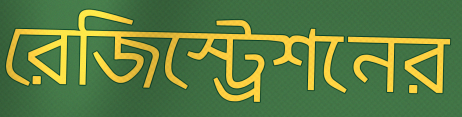
রেজিস্ট্রেশনের